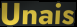
Unais